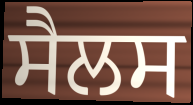
ਸੈਲਸ